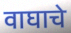
वाघाचे